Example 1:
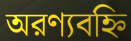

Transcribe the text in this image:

অরণ্যবহ্নি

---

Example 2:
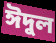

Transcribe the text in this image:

ঈদুল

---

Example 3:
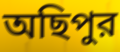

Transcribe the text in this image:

অছিপুর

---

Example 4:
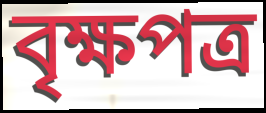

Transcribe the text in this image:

বৃক্ষপত্র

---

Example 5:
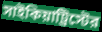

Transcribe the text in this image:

সাইকিয়াট্রিস্টের